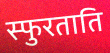
स्फुरताति